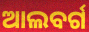
ଆଲବର୍ଗ